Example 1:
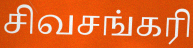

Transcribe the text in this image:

சிவசங்கரி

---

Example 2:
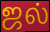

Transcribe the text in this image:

ஜல்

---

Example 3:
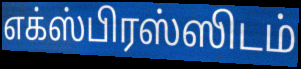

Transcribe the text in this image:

எக்ஸ்பிரஸ்ஸிடம்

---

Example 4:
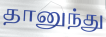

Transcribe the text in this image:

தானுந்து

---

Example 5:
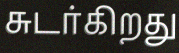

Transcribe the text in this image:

சுடர்கிறது